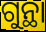
ଗୁନ୍ଥା